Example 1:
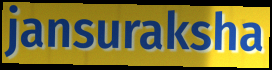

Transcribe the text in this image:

jansuraksha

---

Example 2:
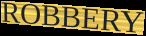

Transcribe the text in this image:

ROBBERY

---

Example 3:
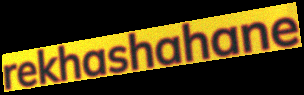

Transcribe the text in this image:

rekhashahane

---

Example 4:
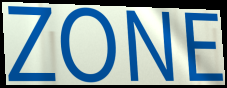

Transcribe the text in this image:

ZONE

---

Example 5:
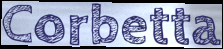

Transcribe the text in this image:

Corbetta